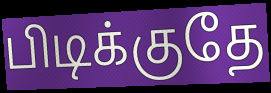
பிடிக்குதே